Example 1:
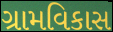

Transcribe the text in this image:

ગ્રામવિકાસ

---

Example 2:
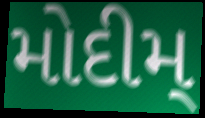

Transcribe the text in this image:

મોદીમ્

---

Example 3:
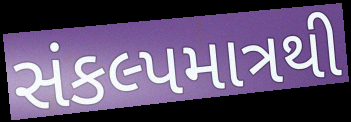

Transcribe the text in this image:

સંકલ્પમાત્રથી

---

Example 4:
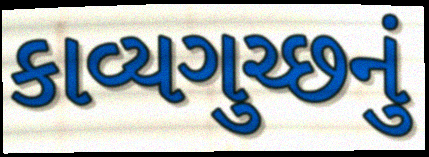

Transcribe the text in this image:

કાવ્યગુચ્છનું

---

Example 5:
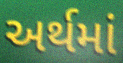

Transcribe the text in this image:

અર્થમાં